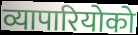
व्यापारियोको